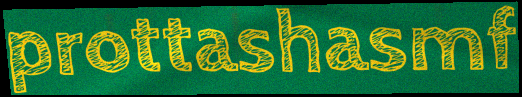
prottashasmf